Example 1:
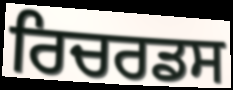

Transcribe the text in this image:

ਰਿਚਰਡਸ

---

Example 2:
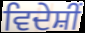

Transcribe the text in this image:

ਵਿਦੇਸ਼ੀਂ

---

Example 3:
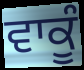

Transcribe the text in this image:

ਵਾਕੂੰ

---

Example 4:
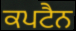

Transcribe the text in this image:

ਕਪਟੈਨ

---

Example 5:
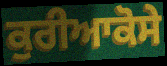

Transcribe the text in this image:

ਕੁਰੀਆਕੋਸੇ